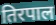
तिरपाल